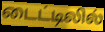
டைட்டிலில்